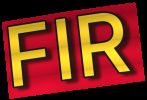
FIR